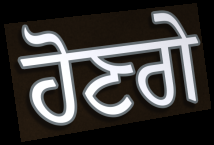
ਹੋਣਗੇ